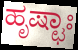
ಹೃಷ್ಟಾಃ